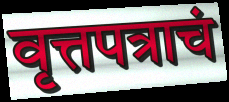
वृत्तपत्राचं